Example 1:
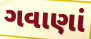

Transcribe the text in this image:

ગવાણાં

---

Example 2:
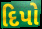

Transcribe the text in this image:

દિપો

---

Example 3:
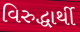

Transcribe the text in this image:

વિરુદ્ધાર્થી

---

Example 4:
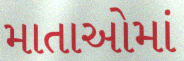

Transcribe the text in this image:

માતાઓમાં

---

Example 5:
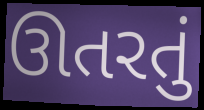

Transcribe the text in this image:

ઊતરતું